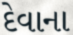
દેવાના